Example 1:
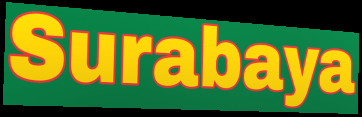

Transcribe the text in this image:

Surabaya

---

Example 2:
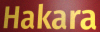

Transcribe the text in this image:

Hakara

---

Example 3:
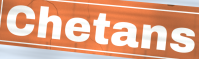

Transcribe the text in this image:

Chetans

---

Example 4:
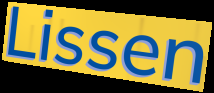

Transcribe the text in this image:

Lissen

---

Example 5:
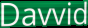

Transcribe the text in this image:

Davvid